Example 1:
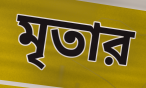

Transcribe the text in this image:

মৃতার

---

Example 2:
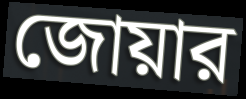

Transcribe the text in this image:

জোয়ার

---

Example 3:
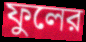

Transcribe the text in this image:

ফুলের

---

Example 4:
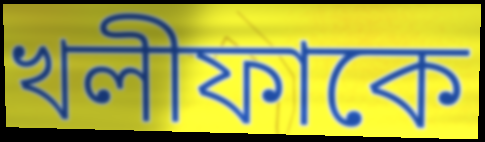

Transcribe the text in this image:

খলীফাকে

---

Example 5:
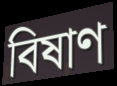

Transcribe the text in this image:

বিষাণ